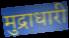
मुद्राधारी